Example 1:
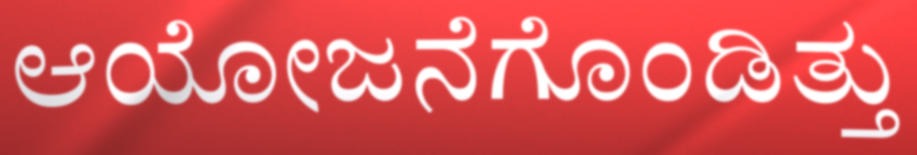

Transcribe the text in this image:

ಆಯೋಜನೆಗೊಂಡಿತ್ತು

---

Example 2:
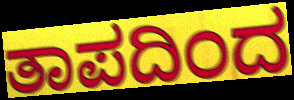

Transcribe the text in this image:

ತಾಪದಿಂದ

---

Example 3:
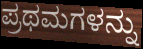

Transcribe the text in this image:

ಪ್ರಥಮಗಳನ್ನು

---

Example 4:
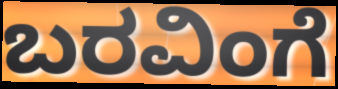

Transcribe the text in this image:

ಬರವಿಂಗೆ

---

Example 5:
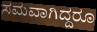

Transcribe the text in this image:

ಸಮವಾಗಿದ್ದರೂ